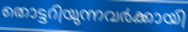
തൊട്ടറിയുന്നവർക്കായി